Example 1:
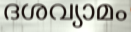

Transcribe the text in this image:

ദശവ്യാമം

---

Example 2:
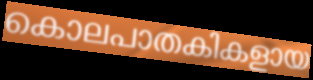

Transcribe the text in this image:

കൊലപാതകികളായ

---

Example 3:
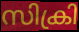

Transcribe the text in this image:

സിക്രി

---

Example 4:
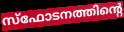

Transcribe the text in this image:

സ്ഫോടനത്തിന്റെ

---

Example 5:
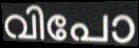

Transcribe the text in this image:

വിപോ